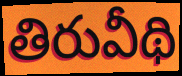
తిరువీథి